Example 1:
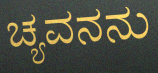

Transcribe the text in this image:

ಚ್ಯವನನು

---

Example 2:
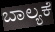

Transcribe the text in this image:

ಬಾಲ್ಯಕೆ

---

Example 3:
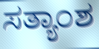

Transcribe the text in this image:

ಸತ್ಯಾಂಶ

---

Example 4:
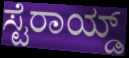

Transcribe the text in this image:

ಸ್ಟೆರಾಯ್ಡ್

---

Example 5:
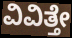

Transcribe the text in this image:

ವಿವಿತ್ತೇ